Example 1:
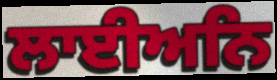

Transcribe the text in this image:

ਲਾਈਅਨਿ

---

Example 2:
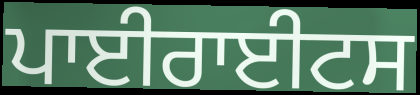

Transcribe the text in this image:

ਪਾਈਰਾਈਟਸ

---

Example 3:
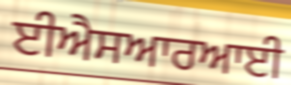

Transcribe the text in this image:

ਈਐਸਆਰਆਈ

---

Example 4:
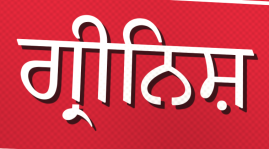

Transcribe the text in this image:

ਗ੍ਰੀਨਿਸ਼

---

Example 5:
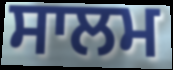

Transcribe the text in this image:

ਸਾਲਮ